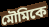
মৌমিকে